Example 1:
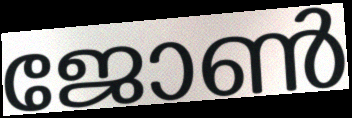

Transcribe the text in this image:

ജോൺ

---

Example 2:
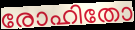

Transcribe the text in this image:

രോഹിതോ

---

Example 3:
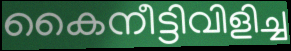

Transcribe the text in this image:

കൈനീട്ടിവിളിച്ച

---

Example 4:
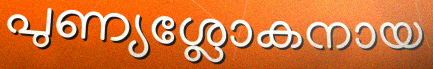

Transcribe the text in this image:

പുണ്യശ്ലോകനായ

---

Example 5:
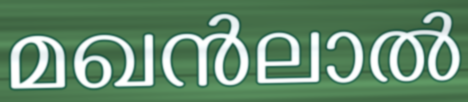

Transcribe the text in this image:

മഖൻലാൽ